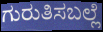
ಗುರುತಿಸಬಲ್ಲೆ